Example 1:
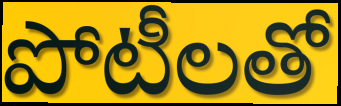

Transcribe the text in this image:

పోటీలతో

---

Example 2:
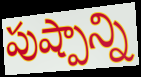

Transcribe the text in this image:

పుష్పాన్ని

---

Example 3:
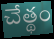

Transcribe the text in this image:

చేత్థం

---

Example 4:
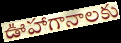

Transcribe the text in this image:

ఊహాగానాలకు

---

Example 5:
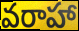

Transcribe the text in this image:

వరాహా